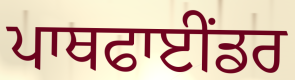
ਪਾਥਫਾਈਂਡਰ